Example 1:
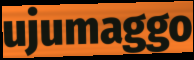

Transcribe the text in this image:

ujumaggo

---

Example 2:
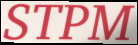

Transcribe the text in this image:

STPM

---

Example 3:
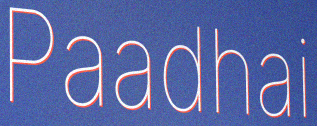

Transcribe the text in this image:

Paadhai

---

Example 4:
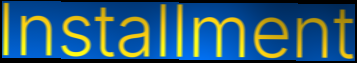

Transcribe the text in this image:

Installment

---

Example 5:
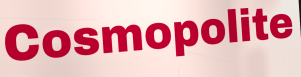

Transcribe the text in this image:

Cosmopolite